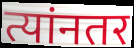
त्यांनतर